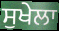
ਸੁਖੇਲਾ